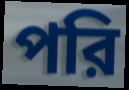
পরি